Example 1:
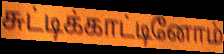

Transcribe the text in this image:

சுட்டிக்காட்டினோம்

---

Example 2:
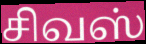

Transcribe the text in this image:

சிவஸ்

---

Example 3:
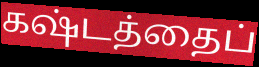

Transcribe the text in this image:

கஷ்டத்தைப்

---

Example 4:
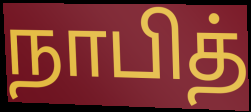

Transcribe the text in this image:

நாபித்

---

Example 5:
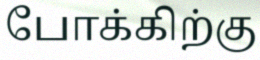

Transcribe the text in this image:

போக்கிற்கு